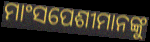
ମାଂସପେଶୀମାନଙ୍କୁ